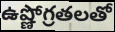
ఉష్ణోగ్రతలతో